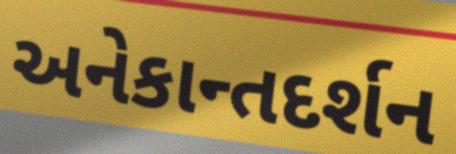
અનેકાન્તદર્શન